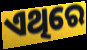
ଏଥିରେ